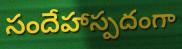
సందేహాస్పదంగా